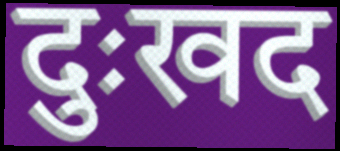
दुःखद